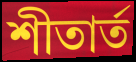
শীতাৰ্ত